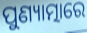
ପୁଣ୍ୟାତ୍ମାରେ